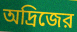
অদ্রিজের